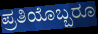
ಪ್ರತಿಯೊಬ್ಬರೂ